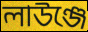
লাউঞ্জে